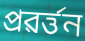
প্ৰৱৰ্ত্তন